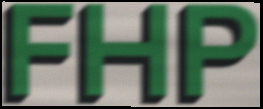
FHP